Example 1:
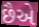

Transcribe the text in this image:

છૈએ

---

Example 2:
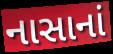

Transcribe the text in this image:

નાસાનાં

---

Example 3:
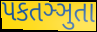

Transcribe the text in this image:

પકતઞ્ઞુતા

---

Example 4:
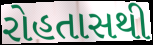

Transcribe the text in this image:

રોહતાસથી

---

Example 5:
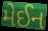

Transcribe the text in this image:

મેઈન